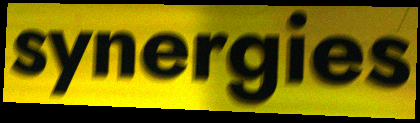
synergies